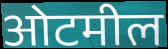
ओटमील